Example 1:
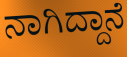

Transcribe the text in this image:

ನಾಗಿದ್ದಾನೆ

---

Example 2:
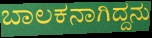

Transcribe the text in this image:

ಬಾಲಕನಾಗಿದ್ದನು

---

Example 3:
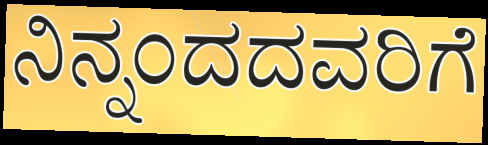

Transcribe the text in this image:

ನಿನ್ನಂದದವರಿಗೆ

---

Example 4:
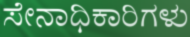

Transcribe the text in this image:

ಸೇನಾಧಿಕಾರಿಗಳು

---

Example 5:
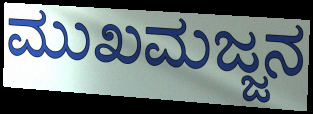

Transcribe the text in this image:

ಮುಖಮಜ್ಜನ